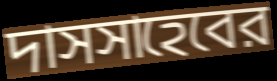
দাসসাহেবের